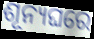
ଶୂନ୍ୟଘରେ